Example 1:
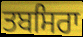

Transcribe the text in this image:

ਤਬਸਿਰਾ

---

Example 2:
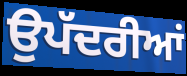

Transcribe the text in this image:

ਉਪੱਦਰੀਆਂ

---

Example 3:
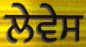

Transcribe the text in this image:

ਲੇਵੇਸ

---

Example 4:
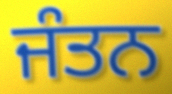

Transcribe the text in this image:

ਜੰਤਨ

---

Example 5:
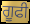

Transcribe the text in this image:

ਗੂਫੀ